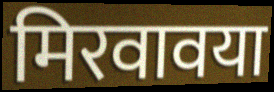
मिरवावया